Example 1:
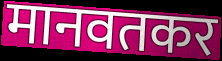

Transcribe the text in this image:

मानवतकर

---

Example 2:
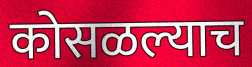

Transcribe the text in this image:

कोसळल्याच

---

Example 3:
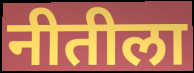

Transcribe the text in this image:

नीतीला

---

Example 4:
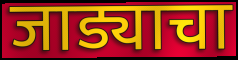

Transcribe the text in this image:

जाड्याचा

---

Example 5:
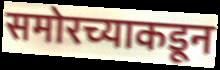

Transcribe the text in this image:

समोरच्याकडून